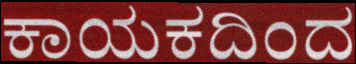
ಕಾಯಕದಿಂದ